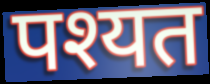
पश्यत